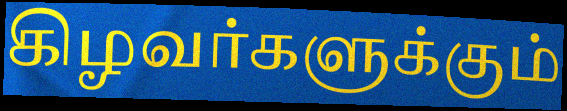
கிழவர்களுக்கும்